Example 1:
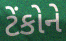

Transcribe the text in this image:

ટેંકોને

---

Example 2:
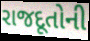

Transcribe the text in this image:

રાજદૂતોની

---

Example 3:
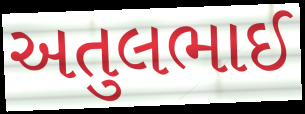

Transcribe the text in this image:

અતુલભાઈ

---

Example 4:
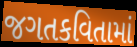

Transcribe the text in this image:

જગતકવિતામાં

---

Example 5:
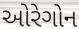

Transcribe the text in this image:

ઓરેગોન